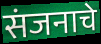
संजनाचे